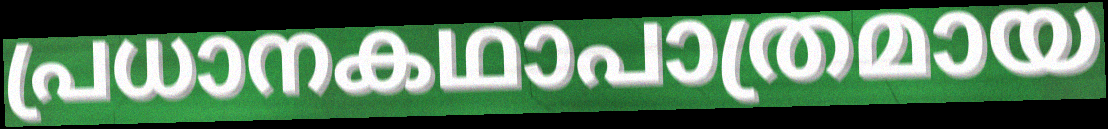
പ്രധാനകഥാപാത്രമായ